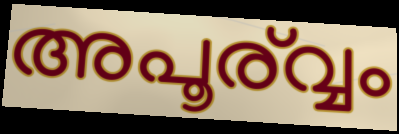
അപൂര്വ്വം